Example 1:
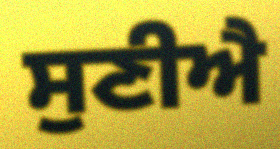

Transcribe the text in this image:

ਸੁਣੀਐ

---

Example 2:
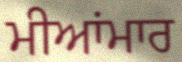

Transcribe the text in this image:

ਮੀਆਂਮਾਰ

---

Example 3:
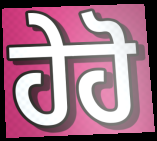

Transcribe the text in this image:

ਹੇਹੋ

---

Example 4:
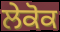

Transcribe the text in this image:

ਲੇਕੋਕ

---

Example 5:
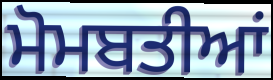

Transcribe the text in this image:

ਮੋਮਬਤੀਆਂ